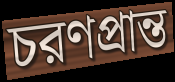
চরণপ্রান্ত